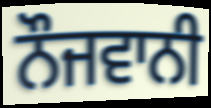
ਨੌਜਵਾਨੀ